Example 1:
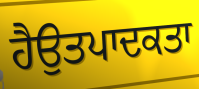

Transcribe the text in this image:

ਹੈਉਤਪਾਦਕਤਾ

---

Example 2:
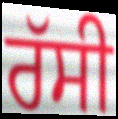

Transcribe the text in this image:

ਰੱਸੀ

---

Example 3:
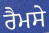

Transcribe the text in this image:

ਰੈਮਸੇ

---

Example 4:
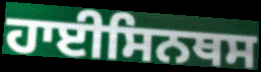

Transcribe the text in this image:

ਹਾਈਸਿਨਥਸ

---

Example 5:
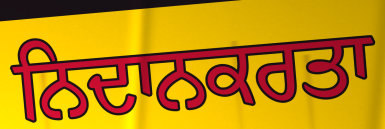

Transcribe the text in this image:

ਨਿਦਾਨਕਰਤਾ